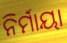
ନିର୍ମାୟା